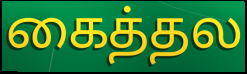
கைத்தல